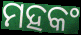
ମହକଂ